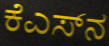
ಕೆಎಸ್‌ನ